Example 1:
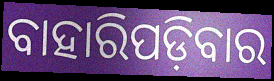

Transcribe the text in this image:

ବାହାରିପଡ଼ିବାର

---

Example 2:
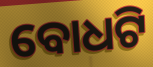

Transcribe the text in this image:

ବୋଧଟି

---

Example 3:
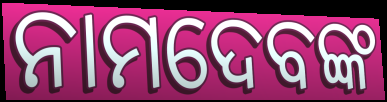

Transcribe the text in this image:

ନାମଦେବଙ୍କ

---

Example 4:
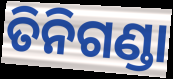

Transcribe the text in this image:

ତିନିଗଣ୍ଡା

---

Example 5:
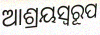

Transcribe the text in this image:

ଆଶ୍ରୟସ୍ୱରୂପ